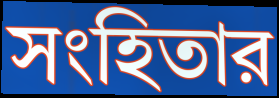
সংহিতার